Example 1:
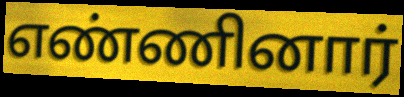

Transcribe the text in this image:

எண்ணினார்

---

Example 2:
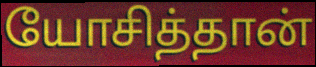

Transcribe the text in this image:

யோசித்தான்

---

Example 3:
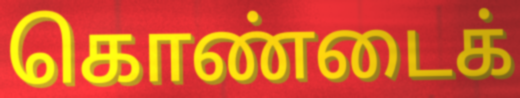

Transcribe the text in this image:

கொண்டைக்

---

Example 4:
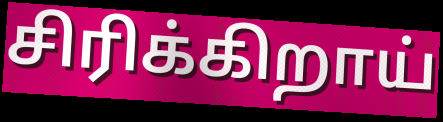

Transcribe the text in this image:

சிரிக்கிறாய்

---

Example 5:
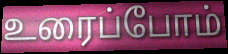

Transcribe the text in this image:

உரைப்போம்